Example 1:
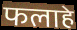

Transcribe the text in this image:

फलाहे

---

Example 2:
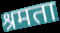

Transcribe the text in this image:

श्रमता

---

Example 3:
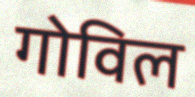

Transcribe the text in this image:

गोविल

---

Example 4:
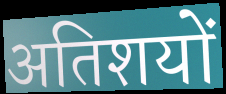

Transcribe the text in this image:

अतिशयों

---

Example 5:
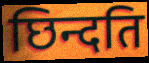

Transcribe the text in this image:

छिन्दति